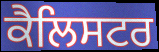
ਕੈਲਿਸਟਰ